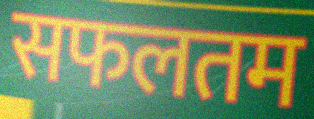
सफलतम